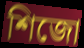
শিজো